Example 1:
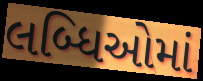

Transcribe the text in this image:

લબ્ધિઓમાં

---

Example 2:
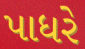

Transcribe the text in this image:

પાધરે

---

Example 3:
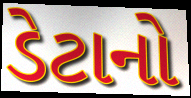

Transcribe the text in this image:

ડેટાનો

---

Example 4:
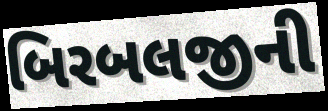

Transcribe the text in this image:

બિરબલજીની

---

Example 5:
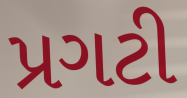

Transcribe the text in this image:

પ્રગટી